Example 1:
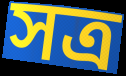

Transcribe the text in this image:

সত্ৰ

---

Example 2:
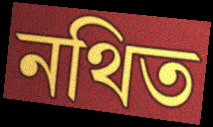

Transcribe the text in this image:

নথিত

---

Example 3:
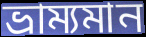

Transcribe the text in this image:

ভ্ৰাম্যমান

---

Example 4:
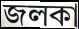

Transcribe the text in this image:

জলকা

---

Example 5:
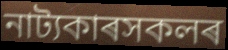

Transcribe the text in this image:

নাট্যকাৰসকলৰ